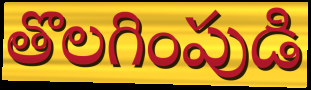
తొలగింపుడి